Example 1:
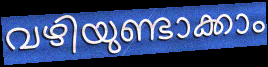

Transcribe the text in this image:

വഴിയുണ്ടാക്കാം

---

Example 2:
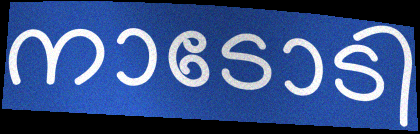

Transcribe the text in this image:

നാടോടി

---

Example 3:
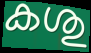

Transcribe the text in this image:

കശു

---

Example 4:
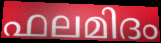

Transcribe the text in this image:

ഫലമിദം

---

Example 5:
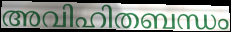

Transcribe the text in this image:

അവിഹിതബന്ധം